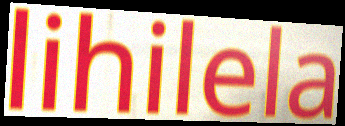
lihilela